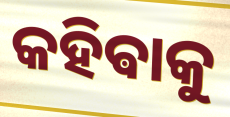
କହିଵାକୁ